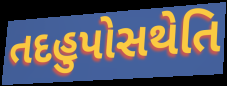
તદહુપોસથેતિ